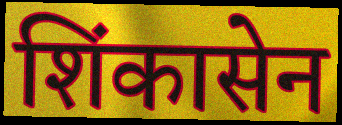
शिंकासेन